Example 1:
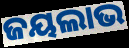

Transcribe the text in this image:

ଜୟଲାଭ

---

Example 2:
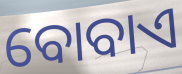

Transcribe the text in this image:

ବୋବାଏ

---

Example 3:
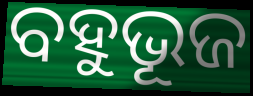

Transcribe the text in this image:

ବହୁଭୂଜ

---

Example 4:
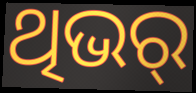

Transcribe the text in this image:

ଥିଭର୍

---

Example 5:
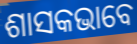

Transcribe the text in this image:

ଶାସକଭାବେ